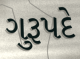
ગુરૂપદે